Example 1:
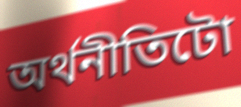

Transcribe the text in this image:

অৰ্থনীতিটো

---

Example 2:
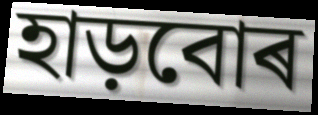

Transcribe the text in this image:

হাড়বোৰ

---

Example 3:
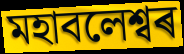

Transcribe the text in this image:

মহাবলেশ্বৰ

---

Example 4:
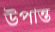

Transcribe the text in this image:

উপান্ত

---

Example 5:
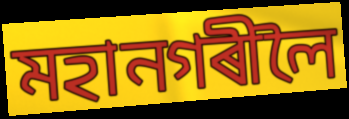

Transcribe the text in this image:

মহানগৰীলৈ